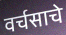
वर्चसाचे